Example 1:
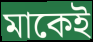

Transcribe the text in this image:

মাকেই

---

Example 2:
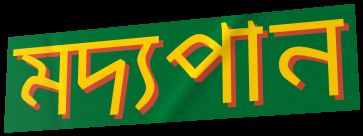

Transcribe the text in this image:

মদ্যপান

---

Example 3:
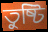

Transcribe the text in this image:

তুষ্টি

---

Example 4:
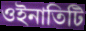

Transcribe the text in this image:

ওইনাতিটি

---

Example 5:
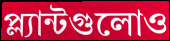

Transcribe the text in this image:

প্ল্যান্টগুলোও